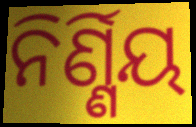
ନିର୍ଣ୍ଣିୟ